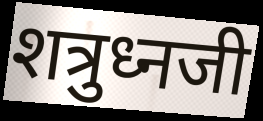
शत्रुध्नजी